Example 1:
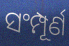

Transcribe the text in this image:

ସଂମ୍ପୂର୍ଣ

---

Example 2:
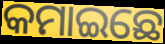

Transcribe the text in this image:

କମାଇଛେ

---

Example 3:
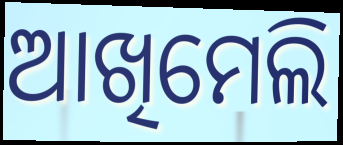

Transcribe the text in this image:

ଆଖିମେଲି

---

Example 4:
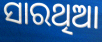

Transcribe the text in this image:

ସାରଥିଆ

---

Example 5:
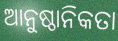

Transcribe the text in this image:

ଆନୁଷ୍ଠାନିକତା